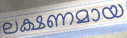
ലക്ഷണമായ